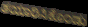
ತಯಾರಿಸಿಕೊಂಡು